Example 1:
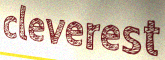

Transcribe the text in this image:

cleverest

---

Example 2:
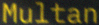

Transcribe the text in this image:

Multan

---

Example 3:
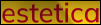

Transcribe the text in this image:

estetica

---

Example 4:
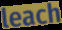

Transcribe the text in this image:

leach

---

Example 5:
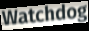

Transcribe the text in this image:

Watchdog